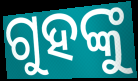
ଗୁହଙ୍କୁ